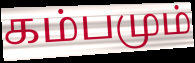
கம்பமும்